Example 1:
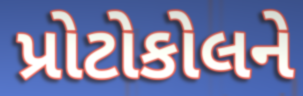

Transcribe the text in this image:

પ્રોટોકોલને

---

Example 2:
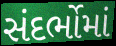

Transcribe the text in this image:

સંદર્ભોમાં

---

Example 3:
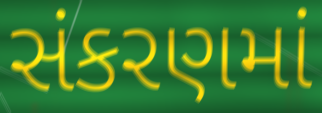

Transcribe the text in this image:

સંકરણમાં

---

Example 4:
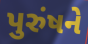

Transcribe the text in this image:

પુરુંષને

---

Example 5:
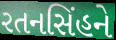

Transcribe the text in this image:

રતનસિંહને